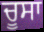
ਚੂਸਾ